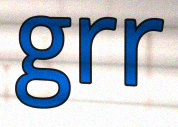
grr